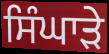
ਸਿੰਘਾੜੇ